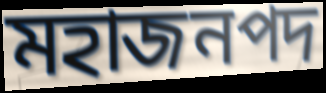
মহাজনপদ